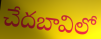
చేదబావిలో